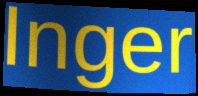
Inger